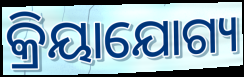
କ୍ରିୟାଯୋଗ୍ୟ